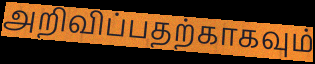
அறிவிப்பதற்காகவும்